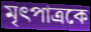
মৃৎপাত্রকে